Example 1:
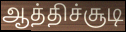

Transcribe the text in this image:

ஆத்திச்சூடி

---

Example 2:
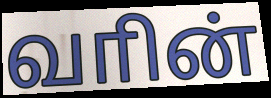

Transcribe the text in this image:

வரின்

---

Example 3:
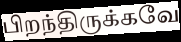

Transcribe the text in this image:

பிறந்திருக்கவே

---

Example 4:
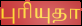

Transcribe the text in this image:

புரியுதா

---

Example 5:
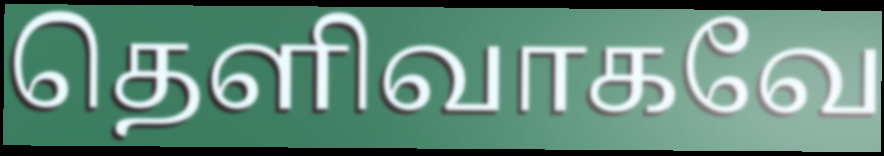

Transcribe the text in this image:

தெளிவாகவே